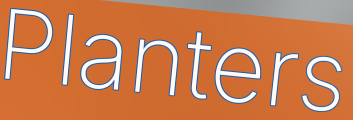
Planters